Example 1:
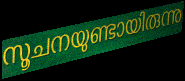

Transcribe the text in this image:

സൂചനയുണ്ടായിരുന്നു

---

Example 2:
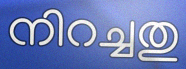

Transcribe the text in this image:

നിറച്ചതു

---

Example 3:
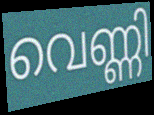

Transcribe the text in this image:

വെണ്ണി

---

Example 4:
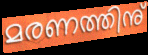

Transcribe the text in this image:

മരണത്തിനു്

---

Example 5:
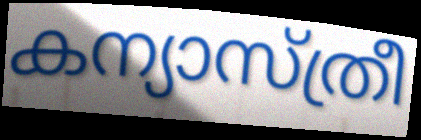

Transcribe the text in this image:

കന്യാസ്ത്രീ